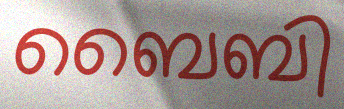
ബൈബി